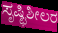
ಸೃಷ್ಟಿಶೀಲರ